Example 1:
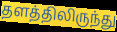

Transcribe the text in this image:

தளத்திலிருந்து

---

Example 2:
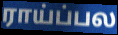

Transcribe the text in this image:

ராய்ப்பல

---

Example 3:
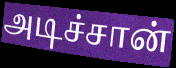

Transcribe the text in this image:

அடிச்சான்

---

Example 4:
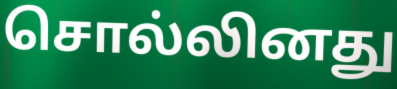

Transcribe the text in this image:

சொல்லினது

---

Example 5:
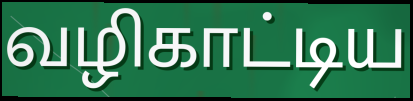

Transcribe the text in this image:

வழிகாட்டிய